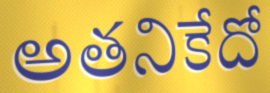
అతనికేదో